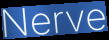
Nerve